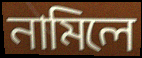
নামিলে